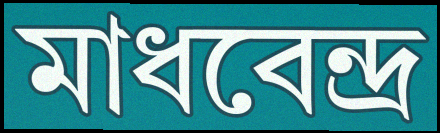
মাধবেন্দ্র